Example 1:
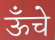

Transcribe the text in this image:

ऊँचे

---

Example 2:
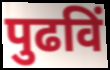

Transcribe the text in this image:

पुढविं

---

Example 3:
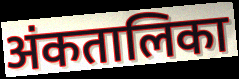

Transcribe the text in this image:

अंकतालिका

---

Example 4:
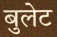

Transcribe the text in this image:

बुलेट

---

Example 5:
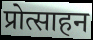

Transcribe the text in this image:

प्रोत्साहन